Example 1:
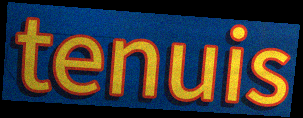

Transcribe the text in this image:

tenuis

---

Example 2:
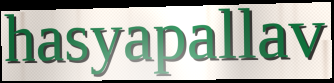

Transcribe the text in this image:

hasyapallav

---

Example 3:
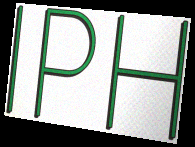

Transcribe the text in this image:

IPH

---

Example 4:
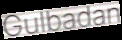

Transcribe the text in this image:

Gulbadan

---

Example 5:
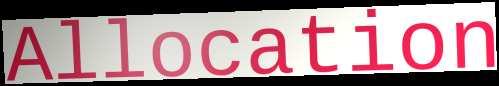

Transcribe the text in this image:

Allocation